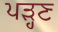
ਪੜ੍ਹਣ